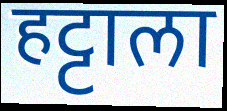
हट्टाला